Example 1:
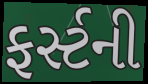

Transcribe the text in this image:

ફર્સ્ટની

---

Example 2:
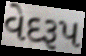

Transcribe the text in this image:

વેદરૂપ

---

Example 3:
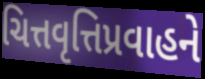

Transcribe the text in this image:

ચિત્તવૃત્તિપ્રવાહને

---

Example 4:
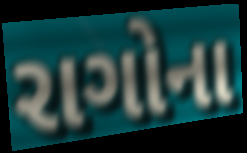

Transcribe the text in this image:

રાગોના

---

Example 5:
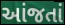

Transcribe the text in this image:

આંજતાં